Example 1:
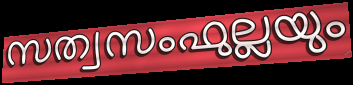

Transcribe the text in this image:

സത്വസംഫുല്ലയും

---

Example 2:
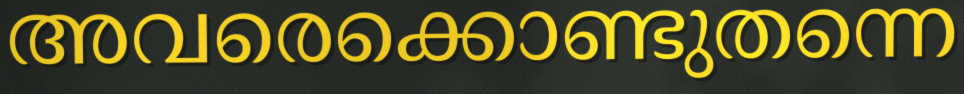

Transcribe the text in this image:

അവരെക്കൊണ്ടുതന്നെ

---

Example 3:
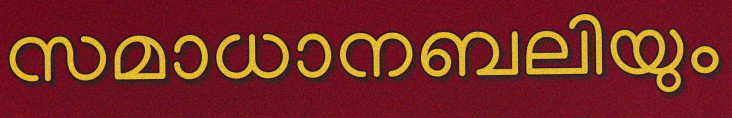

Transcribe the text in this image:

സമാധാനബലിയും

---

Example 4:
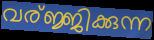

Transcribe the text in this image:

വര്ജ്ജിക്കുന്ന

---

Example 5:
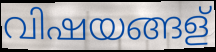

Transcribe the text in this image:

വിഷയങ്ങള്